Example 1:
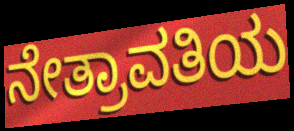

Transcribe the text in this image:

ನೇತ್ರಾವತಿಯ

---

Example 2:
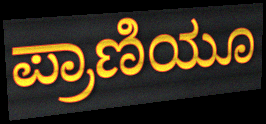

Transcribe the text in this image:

ಪ್ರಾಣಿಯೂ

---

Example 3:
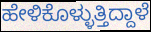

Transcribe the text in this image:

ಹೇಳಿಕೊಳ್ಳುತ್ತಿದ್ದಾಳೆ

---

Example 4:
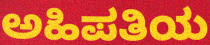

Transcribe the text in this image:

ಅಹಿಪತಿಯ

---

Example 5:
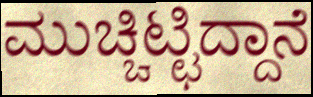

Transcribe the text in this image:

ಮುಚ್ಚಿಟ್ಟಿದ್ದಾನೆ